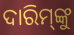
ଦାରିମ୍‍ଙ୍କୁ